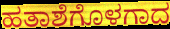
ಹತಾಶೆಗೊಳಗಾದ